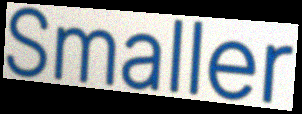
Smaller